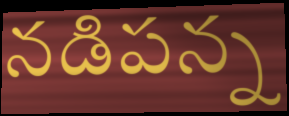
నడిపన్న